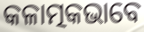
କଳାତ୍ମକଭାବେ